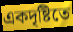
একদৃষ্টিতে